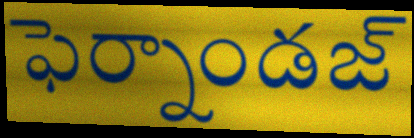
ఫెర్నాండజ్